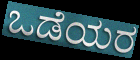
ಒಡೆಯರ